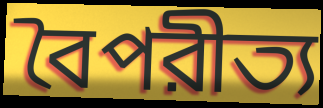
বৈপরীত্য